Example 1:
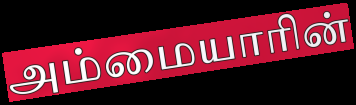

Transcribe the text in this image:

அம்மையாரின்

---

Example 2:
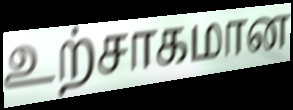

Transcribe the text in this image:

உற்சாகமான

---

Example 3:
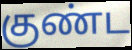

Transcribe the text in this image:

குண்ட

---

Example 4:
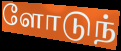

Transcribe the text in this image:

ளோடுந்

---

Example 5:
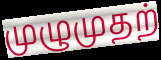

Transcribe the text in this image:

முழுமுதற்